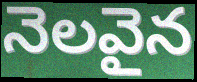
నెలవైన